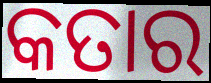
କତାର